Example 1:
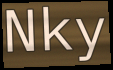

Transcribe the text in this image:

Nky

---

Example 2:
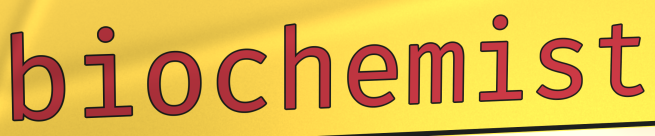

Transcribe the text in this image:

biochemist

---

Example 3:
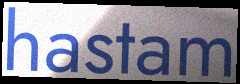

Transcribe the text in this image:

hastam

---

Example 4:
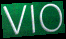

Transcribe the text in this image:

VIO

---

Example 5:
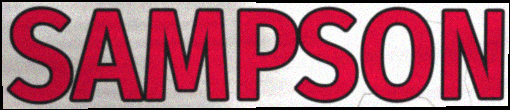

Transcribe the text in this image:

SAMPSON